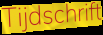
Tijdschrift